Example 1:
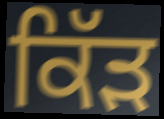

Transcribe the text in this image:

ਕਿੱੜ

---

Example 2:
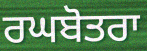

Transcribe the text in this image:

ਰਘਬੋਤਰਾ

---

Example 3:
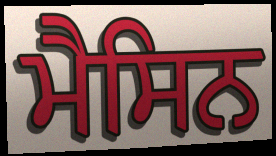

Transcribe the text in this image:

ਮੈਸਿਨ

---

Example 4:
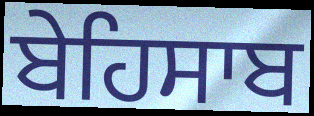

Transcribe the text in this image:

ਬੇਹਿਸਾਬ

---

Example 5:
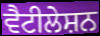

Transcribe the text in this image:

ਵੈਟੀਲੇਸ਼ਨ